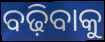
ବଢ଼ିବାକୁ